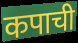
कपाची